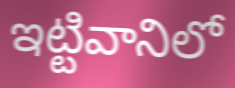
ఇట్టివానిలో